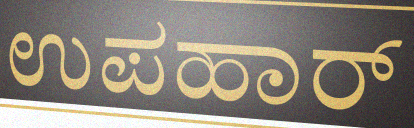
ಉಪಹಾರ್